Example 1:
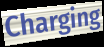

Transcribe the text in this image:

Charging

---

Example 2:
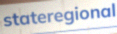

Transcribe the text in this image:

stateregional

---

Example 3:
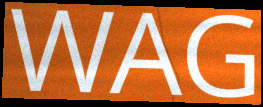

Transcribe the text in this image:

WAG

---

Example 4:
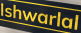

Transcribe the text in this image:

Ishwarlal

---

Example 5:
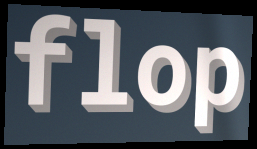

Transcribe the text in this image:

flop